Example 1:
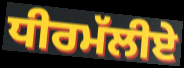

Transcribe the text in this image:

ਧੀਰਮੱਲੀਏ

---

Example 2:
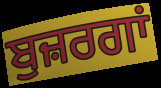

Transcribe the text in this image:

ਬੁਜ਼ਰਗਾਂ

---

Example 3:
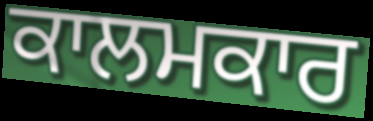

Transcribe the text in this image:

ਕਾਲਮਕਾਰ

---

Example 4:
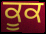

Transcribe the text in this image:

ਕੂਕ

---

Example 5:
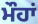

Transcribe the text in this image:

ਮੌਹਾਂ